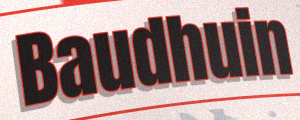
Baudhuin